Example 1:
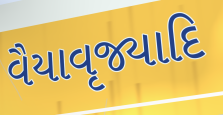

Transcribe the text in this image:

વૈયાવૃજ્યાદિ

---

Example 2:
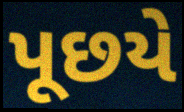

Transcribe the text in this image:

પૂછયે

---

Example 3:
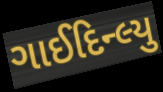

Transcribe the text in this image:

ગાઈદિન્લ્યુ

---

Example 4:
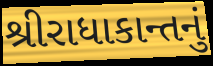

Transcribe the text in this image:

શ્રીરાધાકાન્તનું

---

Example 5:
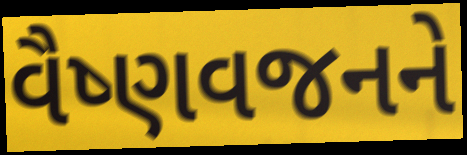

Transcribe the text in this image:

વૈષ્ણવજનને